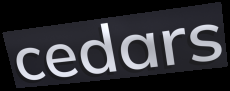
cedars